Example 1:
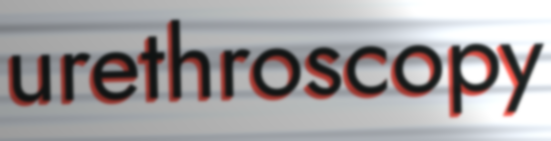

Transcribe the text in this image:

urethroscopy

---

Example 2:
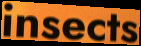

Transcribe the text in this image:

insects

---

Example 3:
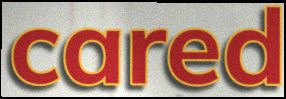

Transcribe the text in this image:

cared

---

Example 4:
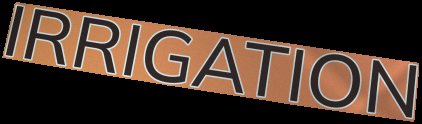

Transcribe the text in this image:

IRRIGATION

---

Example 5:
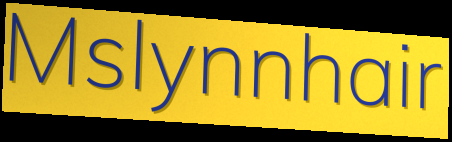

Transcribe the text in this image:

Mslynnhair